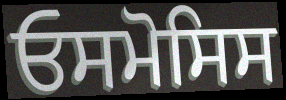
ਓਸਮੋਸਿਸ